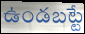
ఉండబట్టే